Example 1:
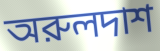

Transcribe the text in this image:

অরুলদাশ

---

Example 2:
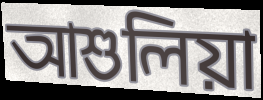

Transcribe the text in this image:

আশুলিয়া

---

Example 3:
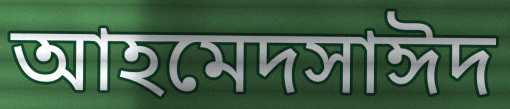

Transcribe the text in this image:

আহমেদসাঈদ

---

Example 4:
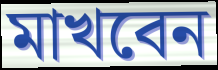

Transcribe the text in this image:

মাখবেন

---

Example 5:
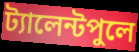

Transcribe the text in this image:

ট্যালেন্টপুলে